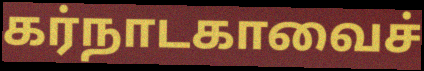
கர்நாடகாவைச்